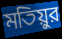
মতিয়ুর